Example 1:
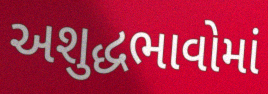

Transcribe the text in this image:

અશુદ્ધભાવોમાં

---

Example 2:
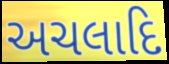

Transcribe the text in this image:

અચલાદિ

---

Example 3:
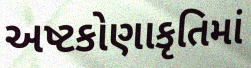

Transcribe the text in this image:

અષ્ટકોણાકૃતિમાં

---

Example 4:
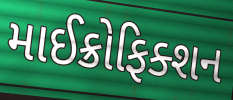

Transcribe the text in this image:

માઈક્રોફિક્શન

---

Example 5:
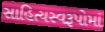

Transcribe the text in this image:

સાહિત્યસ્વરૂપોમાં